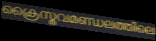
ക്രൈസ്തവമണ്ഡലത്തിലെ